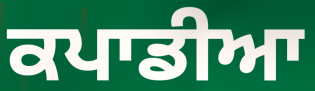
ਕਪਾਡੀਆ